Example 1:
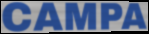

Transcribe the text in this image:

CAMPA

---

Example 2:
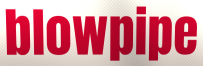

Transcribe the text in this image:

blowpipe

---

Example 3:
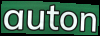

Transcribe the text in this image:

auton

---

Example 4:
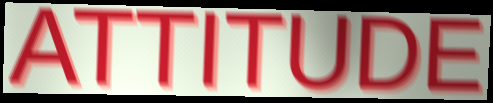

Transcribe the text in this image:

ATTITUDE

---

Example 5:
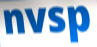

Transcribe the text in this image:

nvsp